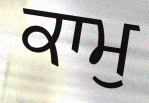
ਕਾਮੁ